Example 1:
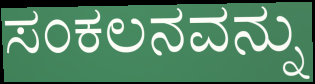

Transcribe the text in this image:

ಸಂಕಲನವನ್ನು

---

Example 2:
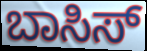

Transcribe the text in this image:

ಬಾಸಿಸ್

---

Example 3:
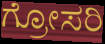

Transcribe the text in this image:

ಗ್ರೋಸರಿ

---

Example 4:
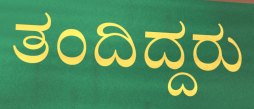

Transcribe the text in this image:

ತಂದಿದ್ದರು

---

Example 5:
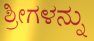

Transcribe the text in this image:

ಶ್ರೀಗಳನ್ನು